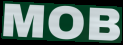
MOB